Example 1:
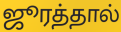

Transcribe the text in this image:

ஜூரத்தால்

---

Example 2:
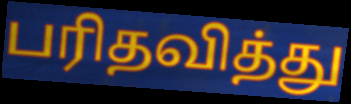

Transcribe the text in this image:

பரிதவித்து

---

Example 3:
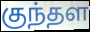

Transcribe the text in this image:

குந்தள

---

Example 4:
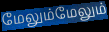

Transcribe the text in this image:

மேலும்மேலும்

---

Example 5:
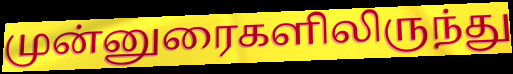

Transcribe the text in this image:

முன்னுரைகளிலிருந்து